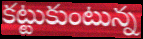
కట్టుకుంటున్న